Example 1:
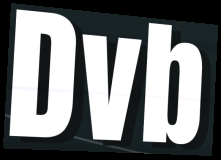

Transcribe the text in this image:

Dvb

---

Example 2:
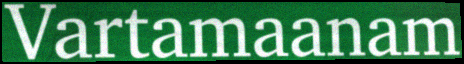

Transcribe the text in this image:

Vartamaanam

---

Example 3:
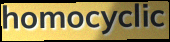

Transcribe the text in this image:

homocyclic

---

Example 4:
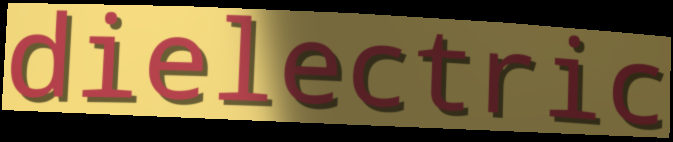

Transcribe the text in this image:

dielectric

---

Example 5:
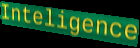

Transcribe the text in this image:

Inteligence